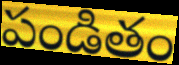
పండితం